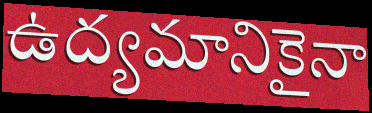
ఉద్యమానికైనా